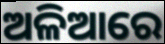
ଅଳିଆରେ